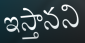
ఇస్తానని